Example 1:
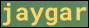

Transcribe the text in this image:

jaygar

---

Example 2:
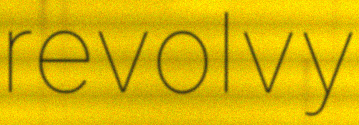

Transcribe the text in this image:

revolvy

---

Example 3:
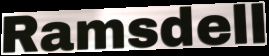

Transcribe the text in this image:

Ramsdell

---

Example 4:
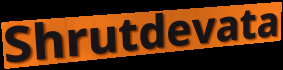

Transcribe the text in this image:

Shrutdevata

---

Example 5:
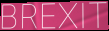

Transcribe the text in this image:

BREXIT